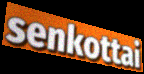
senkottai